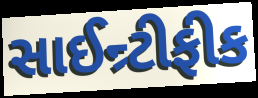
સાઈન્ર્ટીફીક